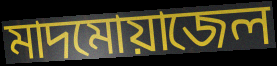
মাদমোয়াজেল